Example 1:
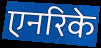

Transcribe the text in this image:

एनरिके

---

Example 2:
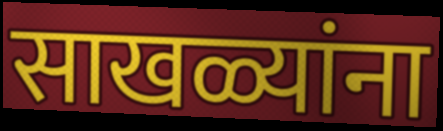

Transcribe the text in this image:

साखळ्यांना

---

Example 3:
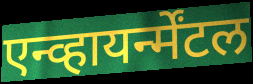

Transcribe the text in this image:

एन्व्हायर्न्मेंटल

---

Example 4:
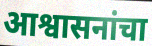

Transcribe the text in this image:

आश्वासनांचा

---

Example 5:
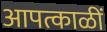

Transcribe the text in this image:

आपत्काळीं